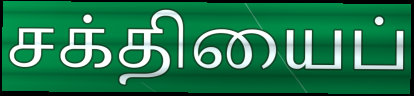
சக்தியைப்